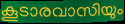
കൂടാരവാസിയും